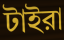
টাইরা